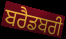
ਬਰੈਡਬਰੀ